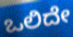
ಒಲಿದೇ